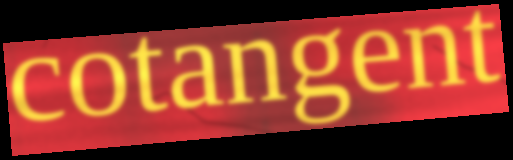
cotangent